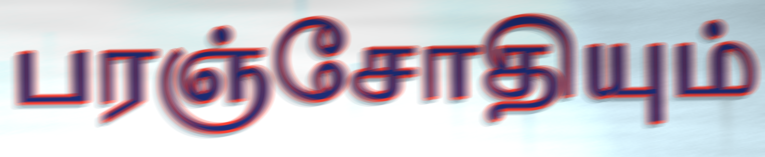
பரஞ்சோதியும்